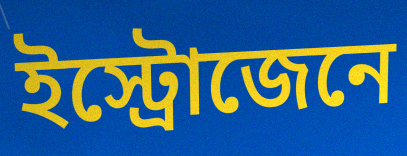
ইস্ট্রোজেনে